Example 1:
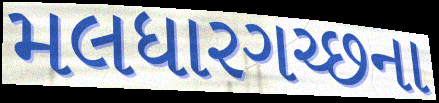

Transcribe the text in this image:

મલધારગચ્છના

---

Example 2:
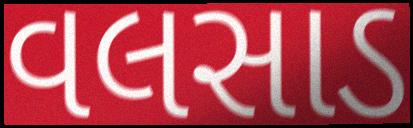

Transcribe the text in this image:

વલસાડ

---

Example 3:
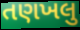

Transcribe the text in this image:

તણખલુ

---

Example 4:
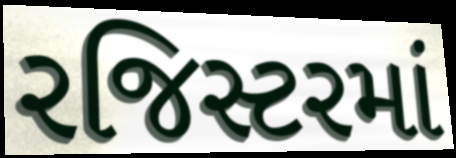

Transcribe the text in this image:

રજિસ્ટરમાં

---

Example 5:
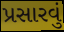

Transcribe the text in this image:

પ્રસારવું